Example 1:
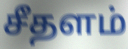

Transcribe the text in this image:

சீதளம்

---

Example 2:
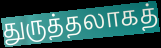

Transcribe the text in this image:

துருத்தலாகத்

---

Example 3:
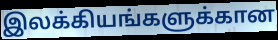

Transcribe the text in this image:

இலக்கியங்களுக்கான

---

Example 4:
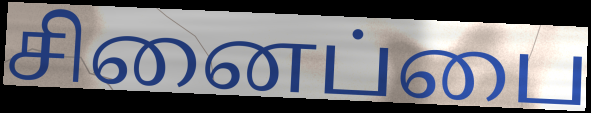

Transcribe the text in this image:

சினைப்பை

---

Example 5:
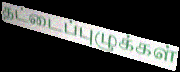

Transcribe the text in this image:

தட்டைப்புழுக்கள்